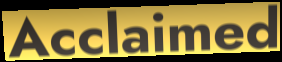
Acclaimed